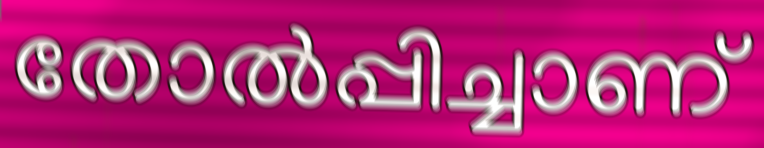
തോൽപ്പിച്ചാണ്